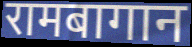
रामबागान